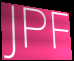
JPF